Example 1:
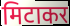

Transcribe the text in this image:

मिटाकर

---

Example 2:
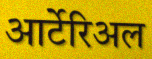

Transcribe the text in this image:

आर्टेरिअल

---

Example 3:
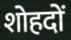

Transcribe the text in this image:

शोहदों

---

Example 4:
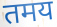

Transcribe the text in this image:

तमय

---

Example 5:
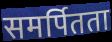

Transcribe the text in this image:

समर्पितता